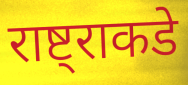
राष्ट्राकडे